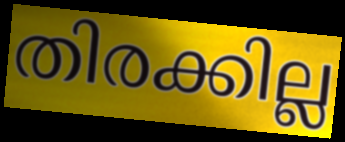
തിരക്കില്ല